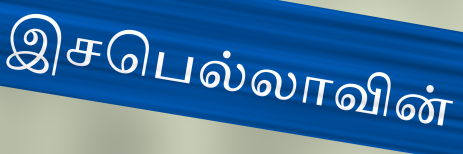
இசபெல்லாவின்